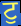
ਟੁ